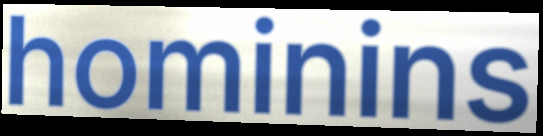
hominins